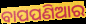
ବାପପଣିଆର